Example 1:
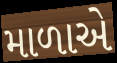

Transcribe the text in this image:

માળાએ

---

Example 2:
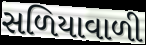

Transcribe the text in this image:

સળિયાવાળી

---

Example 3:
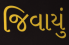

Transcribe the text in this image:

જિવાયું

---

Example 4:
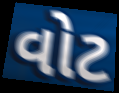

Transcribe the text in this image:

વોટ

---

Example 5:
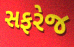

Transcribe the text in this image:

સફરેજ